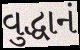
વુદ્ધાનં